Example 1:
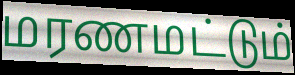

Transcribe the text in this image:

மரணமட்டும்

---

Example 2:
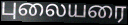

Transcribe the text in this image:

புலையரை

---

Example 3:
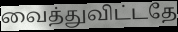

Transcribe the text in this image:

வைத்துவிட்டதே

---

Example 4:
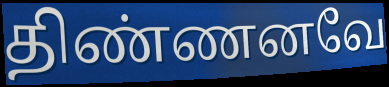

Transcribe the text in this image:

திண்ணனவே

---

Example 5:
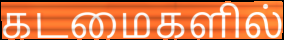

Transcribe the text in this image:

கடமைகளில்